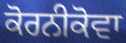
ਕੋਰਨੀਕੋਵਾ